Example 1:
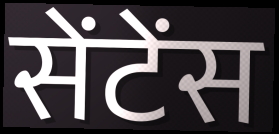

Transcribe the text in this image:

सेंटेंस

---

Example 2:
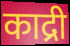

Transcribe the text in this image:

काद्री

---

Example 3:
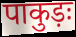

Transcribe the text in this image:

पाकुड़ः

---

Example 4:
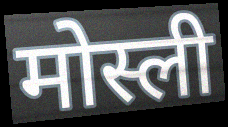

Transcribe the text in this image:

मोस्ली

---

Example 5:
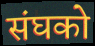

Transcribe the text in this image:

संघको